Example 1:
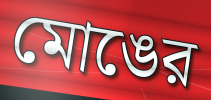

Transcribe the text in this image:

মোঙের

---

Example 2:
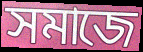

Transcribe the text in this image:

সমাজে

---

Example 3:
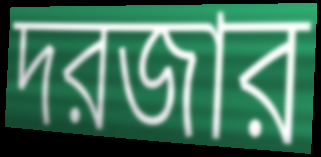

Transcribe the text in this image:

দরজার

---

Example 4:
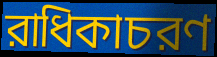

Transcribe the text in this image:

রাধিকাচরণ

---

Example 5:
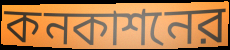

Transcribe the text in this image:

কনকাশনের